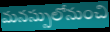
మనస్సులోనుంచి